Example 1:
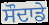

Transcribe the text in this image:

ਸੌਦਾਡੇ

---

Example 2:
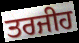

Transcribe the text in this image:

ਤਰਜੀਹ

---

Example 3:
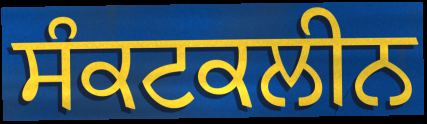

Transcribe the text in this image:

ਸੰਕਟਕਲੀਨ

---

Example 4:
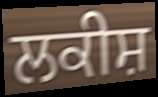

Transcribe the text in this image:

ਲਕੀਸ਼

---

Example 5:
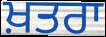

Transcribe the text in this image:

ਖ਼ਤਰਾ